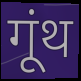
गूंथ